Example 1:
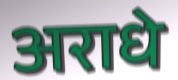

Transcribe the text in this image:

अराधे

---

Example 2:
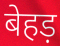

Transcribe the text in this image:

बेहड़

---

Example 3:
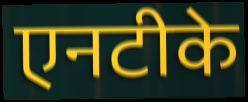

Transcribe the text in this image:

एनटीके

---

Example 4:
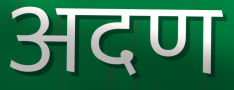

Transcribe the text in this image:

अदण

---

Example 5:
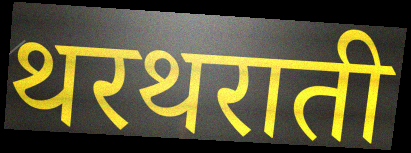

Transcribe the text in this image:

थरथराती